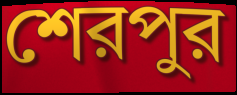
শেরপুর